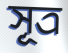
সূত্র